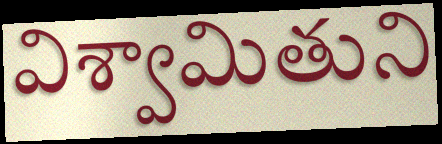
విశ్వామితుని